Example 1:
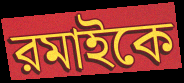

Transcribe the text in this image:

রমাইকে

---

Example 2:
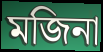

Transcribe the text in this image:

মজিনা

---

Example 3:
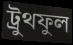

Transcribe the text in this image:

ট্রুথফুল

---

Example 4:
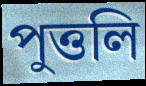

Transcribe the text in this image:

পুত্তলি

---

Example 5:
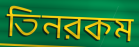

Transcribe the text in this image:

তিনরকম